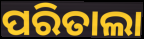
ପରିତାଲା